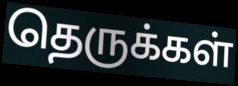
தெருக்கள்